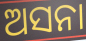
ଅସନା